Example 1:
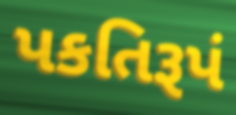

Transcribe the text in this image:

પકતિરૂપં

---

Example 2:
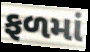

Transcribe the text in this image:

ફળમાં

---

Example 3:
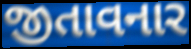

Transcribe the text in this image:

જીતાવનાર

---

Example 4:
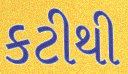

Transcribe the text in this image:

કટીથી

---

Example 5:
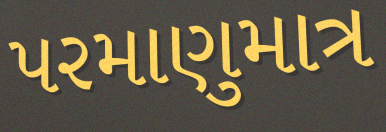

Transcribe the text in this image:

પરમાણુમાત્ર